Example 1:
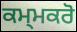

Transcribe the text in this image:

ਕਮ੍ਮਕਰੋ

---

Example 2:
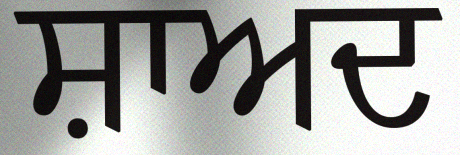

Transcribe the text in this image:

ਸ਼ਾਅਦ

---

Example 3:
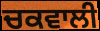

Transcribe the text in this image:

ਚਕਵਾਲੀ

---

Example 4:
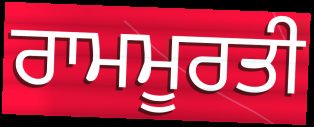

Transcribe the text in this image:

ਰਾਮਮੂਰਤੀ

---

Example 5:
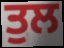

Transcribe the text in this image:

ਤੁਲ